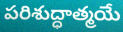
పరిశుద్ధాత్మయే